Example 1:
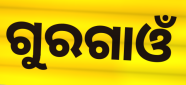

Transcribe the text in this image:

ଗୁରଗାଓଁ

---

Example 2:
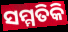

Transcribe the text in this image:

ସମ୍ମତିକି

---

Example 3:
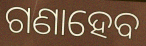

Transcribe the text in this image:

ଗଣାହେବ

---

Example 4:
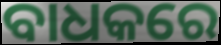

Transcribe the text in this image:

ବାଧକରେ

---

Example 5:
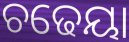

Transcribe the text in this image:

ଚଢେୟା